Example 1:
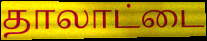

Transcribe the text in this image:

தாலாட்டை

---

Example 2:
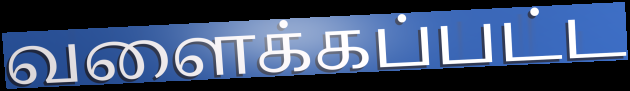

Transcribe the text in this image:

வளைக்கப்பட்ட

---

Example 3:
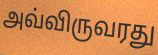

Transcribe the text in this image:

அவ்விருவரது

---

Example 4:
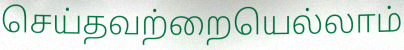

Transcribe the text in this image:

செய்தவற்றையெல்லாம்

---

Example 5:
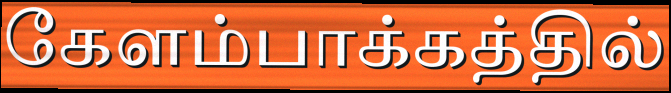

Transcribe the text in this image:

கேளம்பாக்கத்தில்